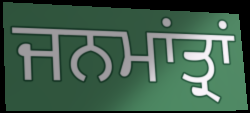
ਜਨਮਾਂਤ੍ਰਾਂ